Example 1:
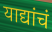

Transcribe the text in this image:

याद्यांचं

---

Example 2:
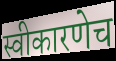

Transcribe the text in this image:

स्वीकारणेच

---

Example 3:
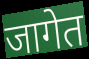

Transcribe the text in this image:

जागेत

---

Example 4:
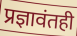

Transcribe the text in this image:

प्रज्ञावंतही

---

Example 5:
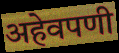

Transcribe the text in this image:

अहेवपणी